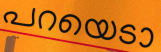
പറയെടാ